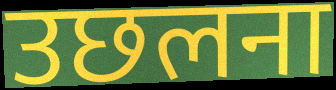
उछलना